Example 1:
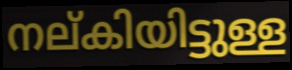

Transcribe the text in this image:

നല്കിയിട്ടുള്ള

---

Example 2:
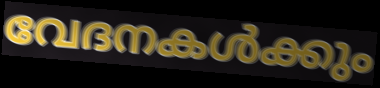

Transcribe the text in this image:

വേദനകൾക്കും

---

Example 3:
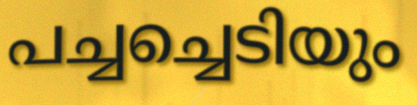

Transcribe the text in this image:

പച്ചച്ചെടിയും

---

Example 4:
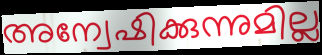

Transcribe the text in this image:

അന്വേഷിക്കുന്നുമില്ല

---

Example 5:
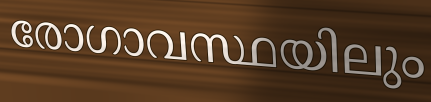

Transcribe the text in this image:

രോഗാവസ്ഥയിലും